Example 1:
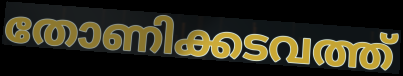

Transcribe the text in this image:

തോണിക്കടവത്ത്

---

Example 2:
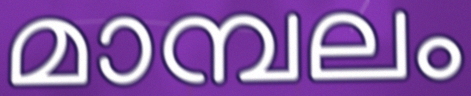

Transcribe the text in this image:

മാമ്പലം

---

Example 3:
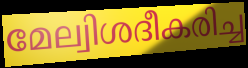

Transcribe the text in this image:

മേല്വിശദീകരിച്ച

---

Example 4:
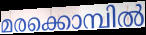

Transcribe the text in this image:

മരക്കൊമ്പിൽ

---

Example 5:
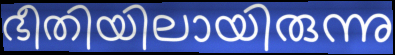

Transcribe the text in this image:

ഭീതിയിലായിരുന്നു